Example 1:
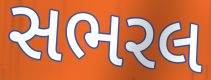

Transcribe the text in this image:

સભરલ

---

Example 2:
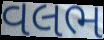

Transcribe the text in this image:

વલભ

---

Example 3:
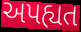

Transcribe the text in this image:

અપહ્યત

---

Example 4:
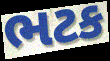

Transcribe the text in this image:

ભટક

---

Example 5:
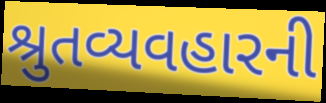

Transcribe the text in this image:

શ્રુતવ્યવહારની